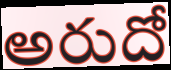
అరుదో